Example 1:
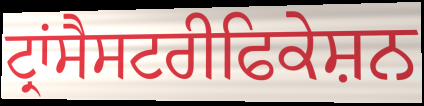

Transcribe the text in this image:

ਟ੍ਰਾਂਸੈਸਟਰੀਫਿਕੇਸ਼ਨ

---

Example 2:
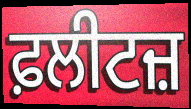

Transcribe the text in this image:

ਫ਼ਲੀਟਜ਼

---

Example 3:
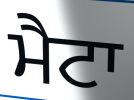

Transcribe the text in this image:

ਮੈਟਾ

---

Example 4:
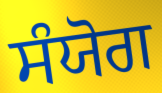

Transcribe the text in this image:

ਸੰਯੋਗ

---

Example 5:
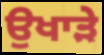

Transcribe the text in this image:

ਉਖਾੜੇ